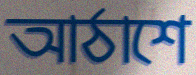
আঠাশে